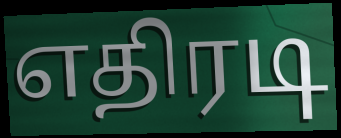
எதிரடி